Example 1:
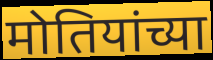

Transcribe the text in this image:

मोतियांच्या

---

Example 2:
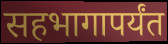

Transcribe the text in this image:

सहभागापर्यंत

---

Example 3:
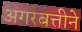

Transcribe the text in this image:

अगरबत्तीने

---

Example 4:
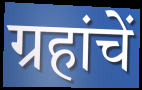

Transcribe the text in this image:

ग्रहांचें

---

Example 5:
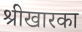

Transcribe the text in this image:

श्रीखारका